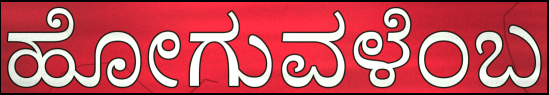
ಹೋಗುವಳೆಂಬ